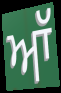
ਆੱ